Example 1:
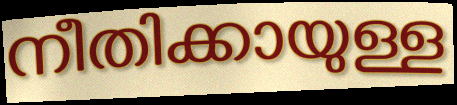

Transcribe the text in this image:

നീതിക്കായുള്ള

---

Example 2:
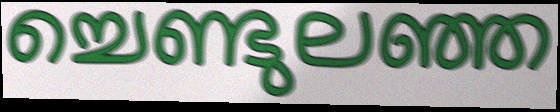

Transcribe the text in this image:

ച്ചെണ്ടുലഞ്ഞ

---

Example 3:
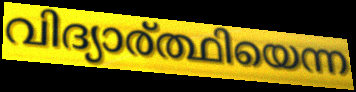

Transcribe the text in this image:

വിദ്യാര്ത്ഥിയെന്ന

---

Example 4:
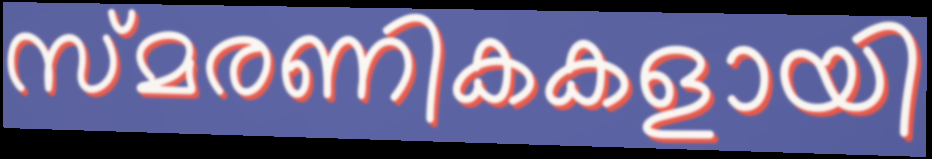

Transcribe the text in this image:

സ്മരണികകളായി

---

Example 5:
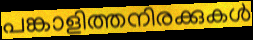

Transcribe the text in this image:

പങ്കാളിത്തനിരക്കുകൾ